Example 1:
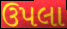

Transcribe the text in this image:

ઉપલા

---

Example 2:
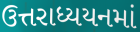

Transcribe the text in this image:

ઉત્તરાધ્યયનમાં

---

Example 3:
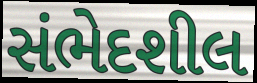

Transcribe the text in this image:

સંભેદશીલ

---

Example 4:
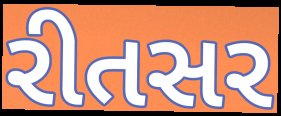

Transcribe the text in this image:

રીતસર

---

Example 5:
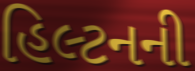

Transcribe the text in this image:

હિલ્ટનની